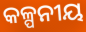
କଳ୍ପନୀୟ